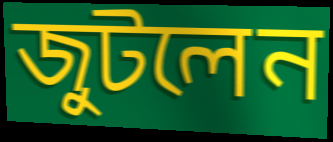
জুটলেন